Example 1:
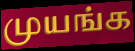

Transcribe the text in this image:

முயங்க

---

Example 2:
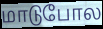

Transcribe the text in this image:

மாடுபோல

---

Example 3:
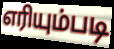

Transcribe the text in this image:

எரியும்படி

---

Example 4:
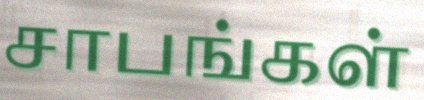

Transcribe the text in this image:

சாபங்கள்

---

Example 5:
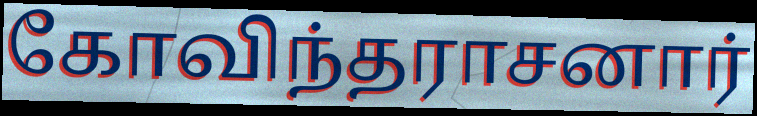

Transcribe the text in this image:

கோவிந்தராசனார்